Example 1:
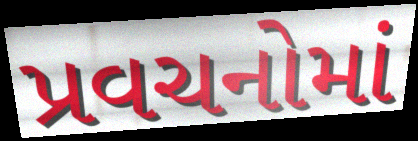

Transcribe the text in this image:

પ્રવચનોમાં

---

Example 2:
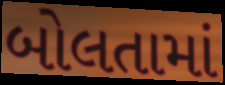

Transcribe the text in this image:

બોલતામાં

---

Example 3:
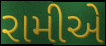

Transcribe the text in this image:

રામીએ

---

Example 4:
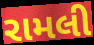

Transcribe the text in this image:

રામલી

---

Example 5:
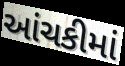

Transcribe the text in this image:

આંચકીમાં